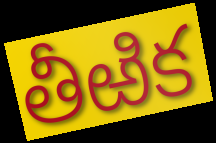
తీఱిక